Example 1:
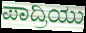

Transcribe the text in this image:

ಪಾದ್ರಿಯು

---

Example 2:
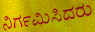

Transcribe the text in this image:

ನಿರ್ಗಮಿಸಿದರು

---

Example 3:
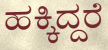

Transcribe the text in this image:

ಹಕ್ಕಿದ್ದರೆ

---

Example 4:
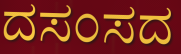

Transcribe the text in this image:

ದಸಂಸದ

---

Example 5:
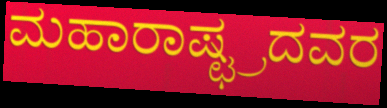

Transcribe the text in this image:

ಮಹಾರಾಷ್ಟ್ರದವರ